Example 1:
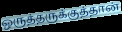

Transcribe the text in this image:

ஒருத்தருக்குத்தான்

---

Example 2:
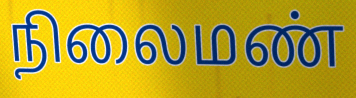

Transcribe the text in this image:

நிலைமண்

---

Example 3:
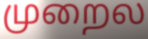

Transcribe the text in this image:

முறைல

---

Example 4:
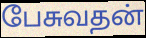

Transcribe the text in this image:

பேசுவதன்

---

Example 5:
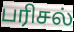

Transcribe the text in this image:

பரிசல்